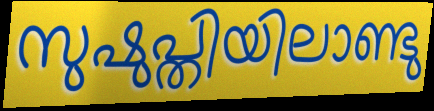
സുഷുപ്തിയിലാണ്ടു